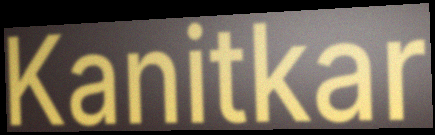
Kanitkar